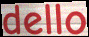
dello